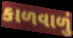
કાળવાળું